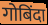
गोबिंदा